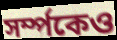
সৰ্ম্পকেও